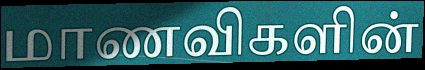
மாணவிகளின்